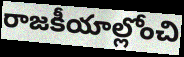
రాజకీయాల్లోంచి